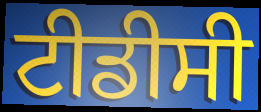
ਟੀਡੀਸੀ